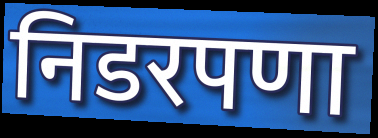
निडरपणा